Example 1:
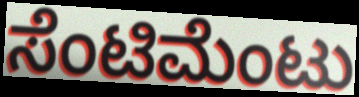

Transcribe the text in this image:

ಸೆಂಟಿಮೆಂಟು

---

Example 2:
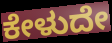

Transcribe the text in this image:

ಕೇಳುದೇ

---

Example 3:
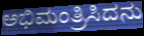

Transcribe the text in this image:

ಅಭಿಮಂತ್ರಿಸಿದನು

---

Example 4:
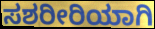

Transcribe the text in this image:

ಸಶರೀರಿಯಾಗಿ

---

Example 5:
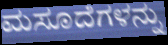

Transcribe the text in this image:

ಮಸೂದೆಗಳನ್ನು